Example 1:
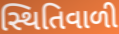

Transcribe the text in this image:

સ્થિતિવાળી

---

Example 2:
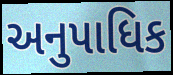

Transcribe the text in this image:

અનુપાધિક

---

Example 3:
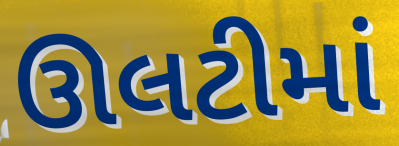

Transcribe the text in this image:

ઊલટીમાં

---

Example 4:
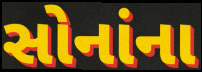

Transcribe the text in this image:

સોનાંના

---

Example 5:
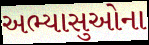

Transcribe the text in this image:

અભ્યાસુઓના